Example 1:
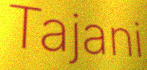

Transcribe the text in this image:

Tajani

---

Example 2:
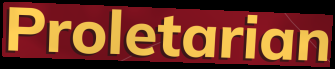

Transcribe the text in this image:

Proletarian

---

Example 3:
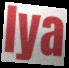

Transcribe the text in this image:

Iya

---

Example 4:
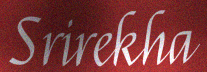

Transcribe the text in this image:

Srirekha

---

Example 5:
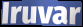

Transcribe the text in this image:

Iruvar